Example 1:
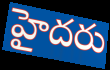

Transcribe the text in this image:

హైదరు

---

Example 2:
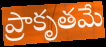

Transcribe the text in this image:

ప్రాకృతమే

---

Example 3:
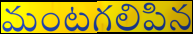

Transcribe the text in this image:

మంటగలిపిన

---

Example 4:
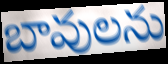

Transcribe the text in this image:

బావులను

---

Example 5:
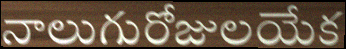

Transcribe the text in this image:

నాలుగురోజులయేక